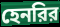
হেনরির